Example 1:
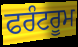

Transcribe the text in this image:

ਫਰੰਟਰੂਮ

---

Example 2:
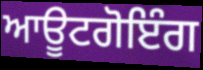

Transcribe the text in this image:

ਆਊਟਗੋਇੰਗ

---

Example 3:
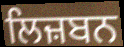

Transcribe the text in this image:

ਲਿਜ਼ਬਨ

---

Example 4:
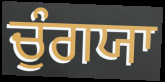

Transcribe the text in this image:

ਚੁੰਗਯਾ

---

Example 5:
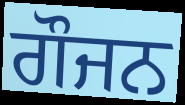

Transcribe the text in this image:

ਗੌਜਨ